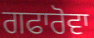
ਗਫਾਰੋਵਾ